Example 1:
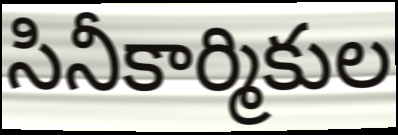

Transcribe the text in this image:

సినీకార్మికుల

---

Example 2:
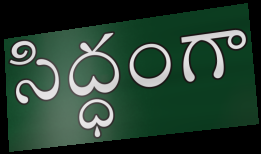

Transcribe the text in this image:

సిద్ధంగా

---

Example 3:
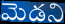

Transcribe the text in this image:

మెడని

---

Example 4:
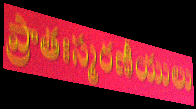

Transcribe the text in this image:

ప్రాతఃస్మరణీయులు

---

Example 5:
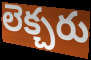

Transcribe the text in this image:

లెక్చరు